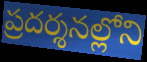
ప్రదర్శనల్లోని